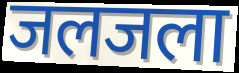
जलजला